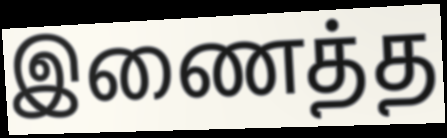
இணைத்த